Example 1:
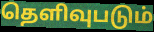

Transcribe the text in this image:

தெளிவுபடும்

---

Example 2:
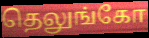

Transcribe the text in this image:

தெலுங்கோ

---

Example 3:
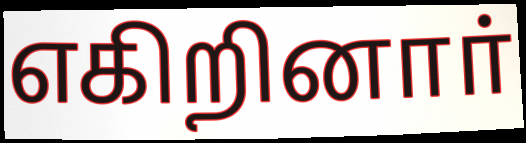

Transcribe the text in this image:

எகிறினார்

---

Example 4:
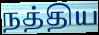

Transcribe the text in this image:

நத்திய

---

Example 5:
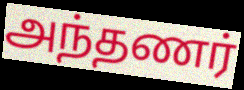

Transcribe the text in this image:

அந்தணர்